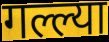
गल्ल्या